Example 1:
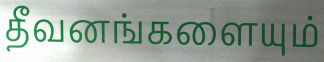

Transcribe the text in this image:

தீவனங்களையும்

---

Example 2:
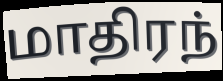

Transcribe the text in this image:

மாதிரந்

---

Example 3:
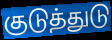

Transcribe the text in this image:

குடுத்துடு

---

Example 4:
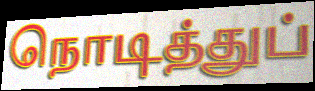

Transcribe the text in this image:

நொடித்துப்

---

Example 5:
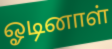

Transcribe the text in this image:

ஓடினாள்